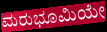
ಮರುಭೂಮಿಯೇ